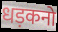
धड़कनो